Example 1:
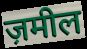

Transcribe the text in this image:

ज़मील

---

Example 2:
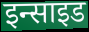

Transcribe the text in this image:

इन्साइड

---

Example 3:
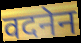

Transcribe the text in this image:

वदनेन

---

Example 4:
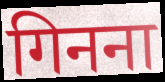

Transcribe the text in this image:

गिनना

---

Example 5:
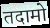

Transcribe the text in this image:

तदामो